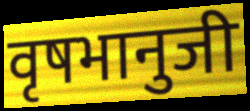
वृषभानुजी